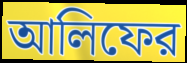
আলিফের